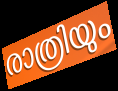
രാത്രിയും